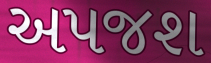
અપજશ